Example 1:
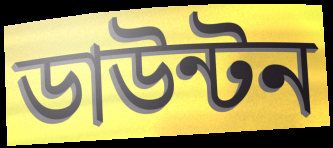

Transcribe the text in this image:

ডাউন্টন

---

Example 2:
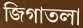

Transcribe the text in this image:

জিগাতলা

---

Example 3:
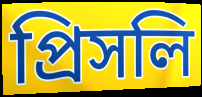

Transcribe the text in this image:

প্রিসলি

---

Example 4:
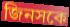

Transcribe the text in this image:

জিনসকে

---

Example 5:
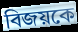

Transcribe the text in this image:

বিজয়কে